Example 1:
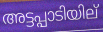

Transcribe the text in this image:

അട്ടപ്പാടിയില്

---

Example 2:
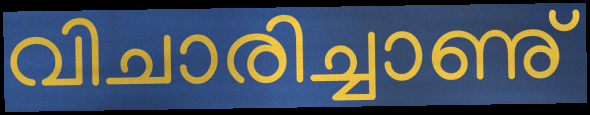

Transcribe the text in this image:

വിചാരിച്ചാണു്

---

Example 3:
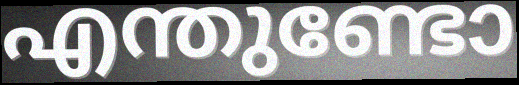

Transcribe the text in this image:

എന്തുണ്ടോ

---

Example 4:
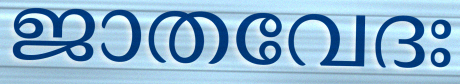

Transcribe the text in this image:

ജാതവേദഃ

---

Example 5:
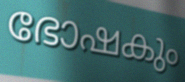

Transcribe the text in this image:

ഭോഷകും